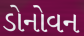
ડોનોવન